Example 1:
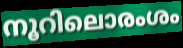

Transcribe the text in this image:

നൂറിലൊരംശം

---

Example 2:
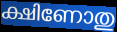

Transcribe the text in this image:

ക്ഷിണോതു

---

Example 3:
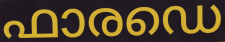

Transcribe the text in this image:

ഫാരഡെ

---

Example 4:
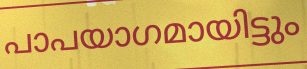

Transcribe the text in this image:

പാപയാഗമായിട്ടും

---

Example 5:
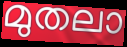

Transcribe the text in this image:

മുതലാ